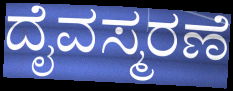
ದೈವಸ್ಮರಣೆ